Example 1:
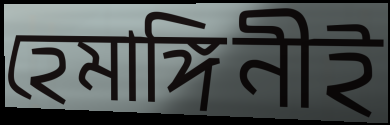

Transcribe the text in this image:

হেমাঙ্গিনীই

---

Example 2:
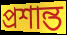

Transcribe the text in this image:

প্রশান্ত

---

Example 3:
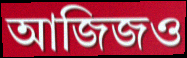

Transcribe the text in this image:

আজিজও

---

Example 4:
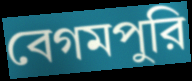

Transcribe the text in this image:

বেগমপুরি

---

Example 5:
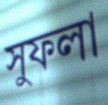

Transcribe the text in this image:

সুফলা